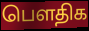
பெளதிக